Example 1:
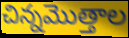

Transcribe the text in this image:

చిన్నమొత్తాల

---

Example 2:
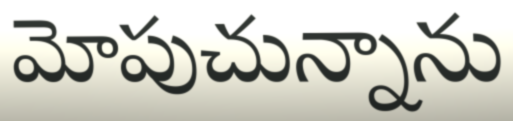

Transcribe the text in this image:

మోపుచున్నాను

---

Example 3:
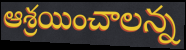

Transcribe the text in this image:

ఆశ్రయించాలన్న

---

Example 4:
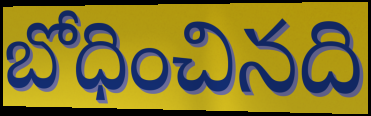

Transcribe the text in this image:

బోధించినది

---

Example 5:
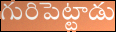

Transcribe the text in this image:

గురిపెట్టాడు